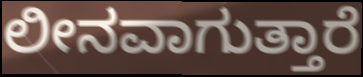
ಲೀನವಾಗುತ್ತಾರೆ